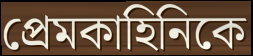
প্রেমকাহিনিকে